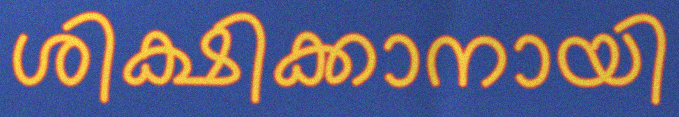
ശിക്ഷിക്കാനായി